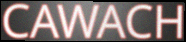
CAWACH